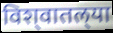
विश्वातल्या